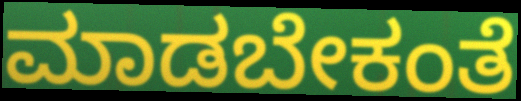
ಮಾಡಬೇಕಂತೆ